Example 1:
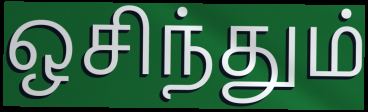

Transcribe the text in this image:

ஒசிந்தும்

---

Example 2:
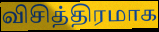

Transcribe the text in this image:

விசித்திரமாக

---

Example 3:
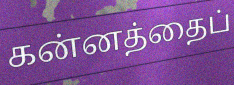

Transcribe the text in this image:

கன்னத்தைப்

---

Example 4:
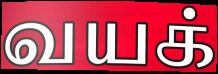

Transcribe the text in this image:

வயக்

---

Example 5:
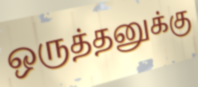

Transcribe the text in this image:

ஒருத்தனுக்கு